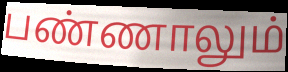
பண்ணாலும்